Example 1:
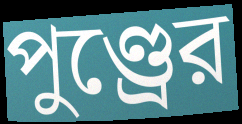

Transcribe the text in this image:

পুণ্ড্রের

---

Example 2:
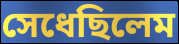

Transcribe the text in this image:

সেধেছিলেম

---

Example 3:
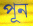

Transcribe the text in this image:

পূন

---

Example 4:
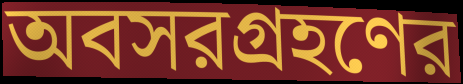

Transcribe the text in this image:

অবসরগ্রহণের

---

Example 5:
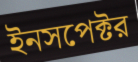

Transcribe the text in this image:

ইনসপেক্টর